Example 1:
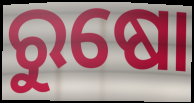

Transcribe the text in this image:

ରୁଷୋ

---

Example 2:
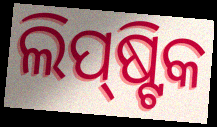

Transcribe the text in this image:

ଲିପ୍‌ଷ୍ଟିକ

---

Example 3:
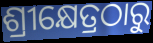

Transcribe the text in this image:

ଶ୍ରୀକ୍ଷେତ୍ରଠାରୁ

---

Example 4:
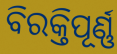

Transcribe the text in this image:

ବିରକ୍ତିପୂର୍ଣ୍ଣ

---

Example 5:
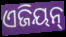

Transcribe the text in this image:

ଏଜିୟନ୍